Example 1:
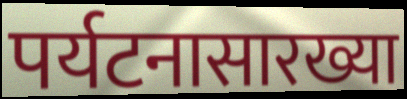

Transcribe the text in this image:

पर्यटनासारख्या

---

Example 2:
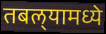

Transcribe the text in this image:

तबल्यामध्ये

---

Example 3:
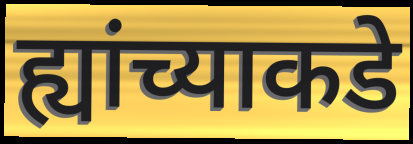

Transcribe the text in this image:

ह्यांच्याकडे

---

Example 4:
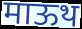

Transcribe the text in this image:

माऊथ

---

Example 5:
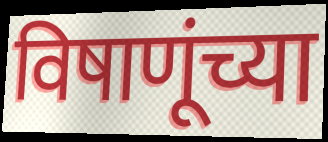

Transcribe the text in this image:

विषाणूंच्या